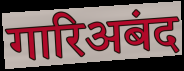
गारिअबंद